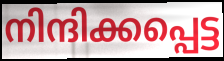
നിന്ദിക്കപ്പെട്ട